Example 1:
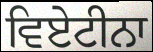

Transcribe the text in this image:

ਵਿਏਟੀਨਾ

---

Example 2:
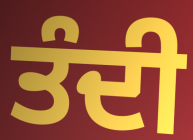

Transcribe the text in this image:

ਤੰਦੀ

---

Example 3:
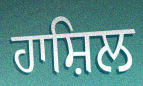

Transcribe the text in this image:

ਹਾਸ਼ਿਲ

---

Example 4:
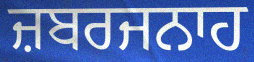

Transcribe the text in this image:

ਜ਼ਬਰਜਨਾਹ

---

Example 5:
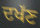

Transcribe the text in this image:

ਦਖੱਣ